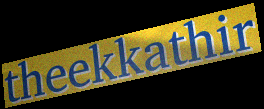
theekkathir